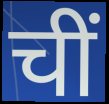
चीं